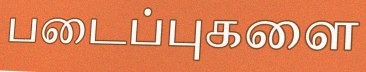
படைப்புகளை